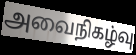
அவைநிகழ்வு